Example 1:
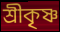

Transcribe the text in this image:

শ্রীকৃষ্ণ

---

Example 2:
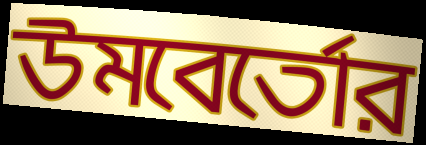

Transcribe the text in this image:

উমবের্তোর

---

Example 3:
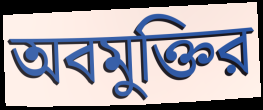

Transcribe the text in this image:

অবমুক্তির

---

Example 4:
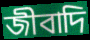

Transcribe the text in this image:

জীবাদি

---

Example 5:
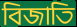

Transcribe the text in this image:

বিজাতি